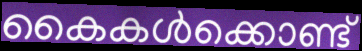
കൈകൾക്കൊണ്ട്